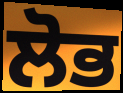
ਲੋਭ